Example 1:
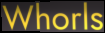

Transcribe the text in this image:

Whorls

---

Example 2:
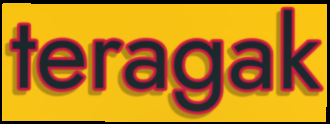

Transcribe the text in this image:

teragak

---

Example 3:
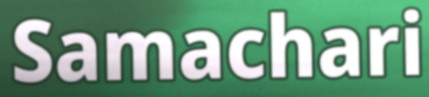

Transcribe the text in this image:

Samachari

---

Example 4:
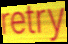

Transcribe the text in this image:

retry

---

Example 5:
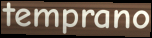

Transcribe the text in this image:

temprano